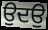
ਉਦਉ